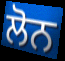
ਲੋਨ